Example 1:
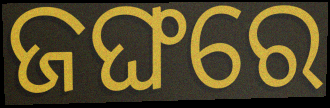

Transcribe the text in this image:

ଜଙ୍ଘରେ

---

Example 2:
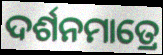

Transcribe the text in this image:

ଦର୍ଶନମାତ୍ରେ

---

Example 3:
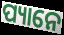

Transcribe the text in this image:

ପ୍ୟାନେ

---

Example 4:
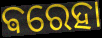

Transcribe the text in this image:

ଵରେହା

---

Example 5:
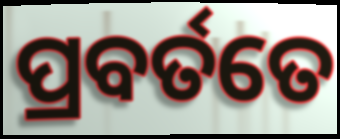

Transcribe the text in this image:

ପ୍ରବର୍ତତେ